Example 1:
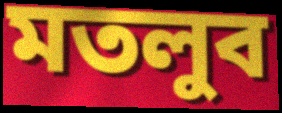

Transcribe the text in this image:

মতলুব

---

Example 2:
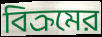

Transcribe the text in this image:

বিক্রমের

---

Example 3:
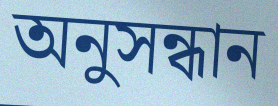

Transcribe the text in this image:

অনুসন্ধান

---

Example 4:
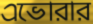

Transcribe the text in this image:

এভোরার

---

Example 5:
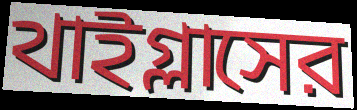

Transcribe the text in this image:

থাইগ্লাসের